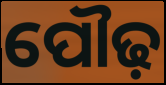
ପୌଢ଼